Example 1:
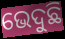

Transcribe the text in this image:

ଭେଦୁଛି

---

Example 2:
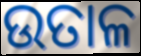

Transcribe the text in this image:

ଉତାଳ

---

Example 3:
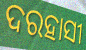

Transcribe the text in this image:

ଦରହାସୀ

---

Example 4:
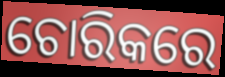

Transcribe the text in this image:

ଚୋରିକରେ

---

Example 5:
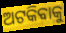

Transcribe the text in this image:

ଅଟକିବାକୁ